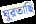
ঘুরতাছি